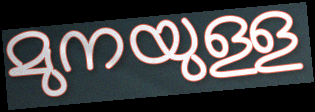
മുനയുള്ള